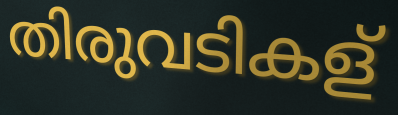
തിരുവടികള്